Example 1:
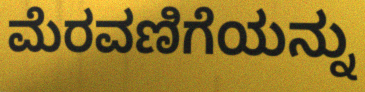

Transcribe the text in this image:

ಮೆರವಣಿಗೆಯನ್ನು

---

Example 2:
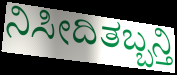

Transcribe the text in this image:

ನಿಸೀದಿತಬ್ಬನ್ತಿ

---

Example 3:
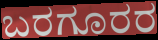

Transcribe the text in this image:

ಬರಗೂರರ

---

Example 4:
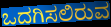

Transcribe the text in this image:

ಒದಗಿಸಲಿರುವ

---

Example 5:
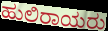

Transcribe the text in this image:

ಹುಲಿರಾಯರು